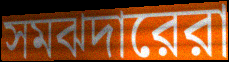
সমঝদারেরা